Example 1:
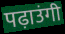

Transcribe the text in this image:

पढ़ाउंगी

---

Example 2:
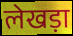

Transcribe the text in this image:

लेखड़ा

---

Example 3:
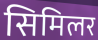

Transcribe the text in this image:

सिमिलर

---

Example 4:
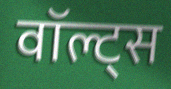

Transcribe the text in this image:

वॉल्ट्स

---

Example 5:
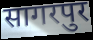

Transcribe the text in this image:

सागरपुर